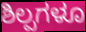
ಶಿಲ್ಪಗಳೂ